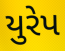
યુરેપ